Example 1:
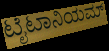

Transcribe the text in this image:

ಟೈಟಾನಿಯಮ್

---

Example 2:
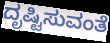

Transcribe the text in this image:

ದೃಷ್ಟಿಸುವಂತೆ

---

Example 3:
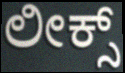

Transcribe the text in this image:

ಲೀಕ್ಸ್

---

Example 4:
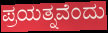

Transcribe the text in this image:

ಪ್ರಯತ್ನವೆಂದು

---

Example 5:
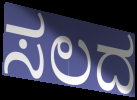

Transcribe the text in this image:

ಸಲದ